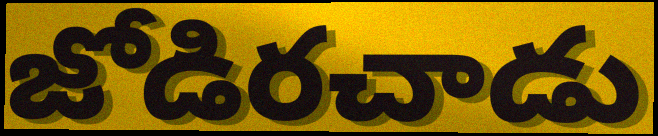
జోడిరచాడు